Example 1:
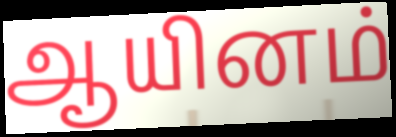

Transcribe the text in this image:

ஆயினம்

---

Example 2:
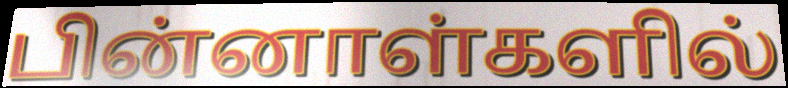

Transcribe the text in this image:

பின்னாள்களில்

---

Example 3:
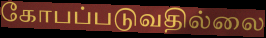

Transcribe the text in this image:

கோபப்படுவதில்லை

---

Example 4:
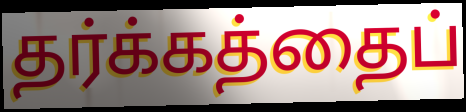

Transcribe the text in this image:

தர்க்கத்தைப்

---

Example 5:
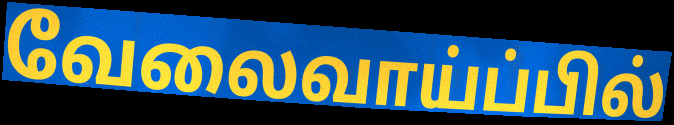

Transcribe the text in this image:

வேலைவாய்ப்பில்